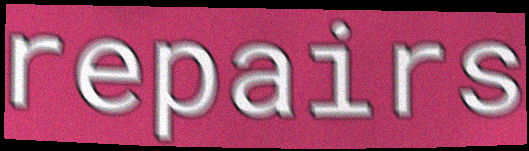
repairs